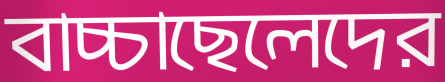
বাচ্চাছেলেদের